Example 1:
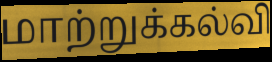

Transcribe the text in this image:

மாற்றுக்கல்வி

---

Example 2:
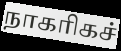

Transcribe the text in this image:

நாகரிகச்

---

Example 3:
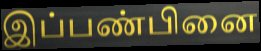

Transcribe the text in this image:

இப்பண்பினை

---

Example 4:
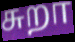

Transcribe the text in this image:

சுறா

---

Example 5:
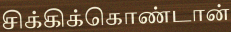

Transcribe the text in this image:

சிக்கிக்கொண்டான்